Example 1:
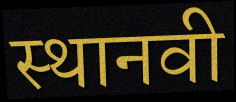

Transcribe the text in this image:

स्थानवी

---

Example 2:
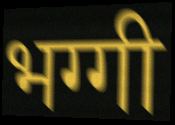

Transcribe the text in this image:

भग्गी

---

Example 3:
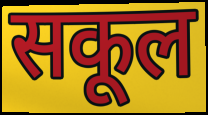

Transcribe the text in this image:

सकूल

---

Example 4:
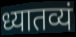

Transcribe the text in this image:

ध्यातव्यं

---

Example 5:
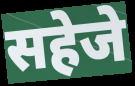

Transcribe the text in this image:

सहेजे